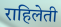
राहिलेती